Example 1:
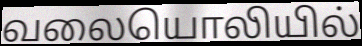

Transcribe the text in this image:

வலையொலியில்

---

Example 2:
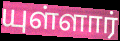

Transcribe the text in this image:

யுள்ளார்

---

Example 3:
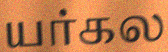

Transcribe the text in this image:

யர்கல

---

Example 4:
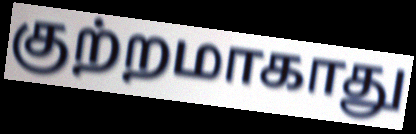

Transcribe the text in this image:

குற்றமாகாது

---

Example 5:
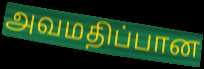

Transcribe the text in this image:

அவமதிப்பான